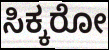
ಸಿಕ್ಕರೋ